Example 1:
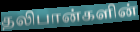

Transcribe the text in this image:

தலிபான்களின்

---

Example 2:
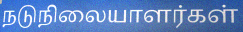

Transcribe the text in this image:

நடுநிலையாளர்கள்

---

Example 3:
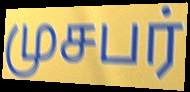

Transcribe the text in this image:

முசபர்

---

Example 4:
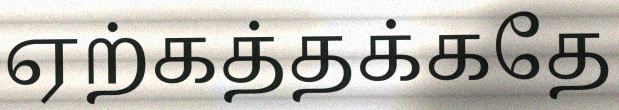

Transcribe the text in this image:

ஏற்கத்தக்கதே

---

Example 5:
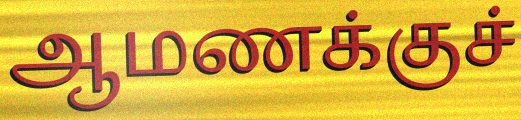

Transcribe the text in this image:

ஆமணக்குச்